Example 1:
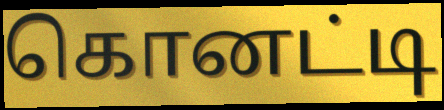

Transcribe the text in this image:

கொனட்டி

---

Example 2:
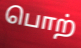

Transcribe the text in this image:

பொற்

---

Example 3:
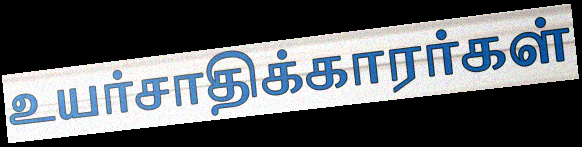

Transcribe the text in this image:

உயர்சாதிக்காரர்கள்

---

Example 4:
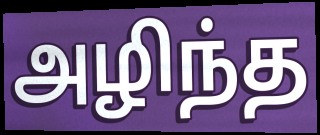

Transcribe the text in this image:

அழிந்த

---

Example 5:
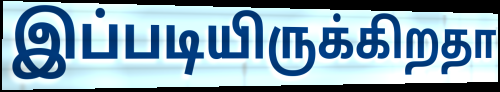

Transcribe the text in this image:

இப்படியிருக்கிறதா